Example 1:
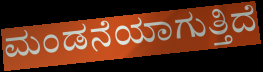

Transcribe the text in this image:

ಮಂಡನೆಯಾಗುತ್ತಿದೆ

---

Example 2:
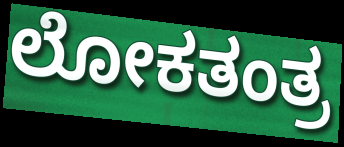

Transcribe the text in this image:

ಲೋಕತಂತ್ರ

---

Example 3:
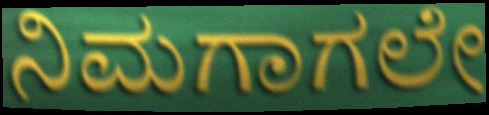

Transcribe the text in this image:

ನಿಮಗಾಗಲೇ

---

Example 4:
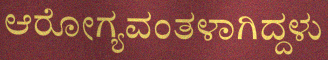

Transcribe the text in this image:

ಆರೋಗ್ಯವಂತಳಾಗಿದ್ದಳು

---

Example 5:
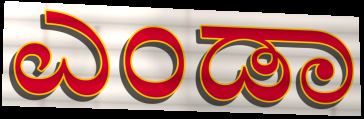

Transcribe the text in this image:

ಎಂಡಾ